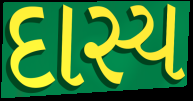
દાસ્ય